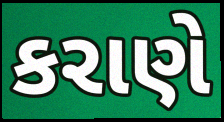
કરાણે